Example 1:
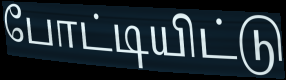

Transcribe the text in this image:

போட்டியிட்டு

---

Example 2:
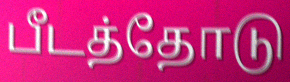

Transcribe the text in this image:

பீடத்தோடு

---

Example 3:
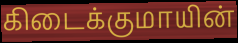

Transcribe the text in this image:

கிடைக்குமாயின்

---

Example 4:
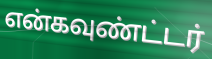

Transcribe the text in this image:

என்கவுண்ட்டர்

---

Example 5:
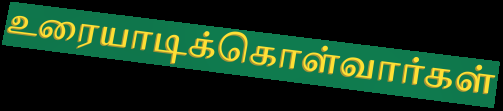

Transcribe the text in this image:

உரையாடிக்கொள்வார்கள்